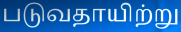
படுவதாயிற்று